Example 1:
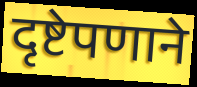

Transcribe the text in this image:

दृष्टेपणाने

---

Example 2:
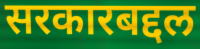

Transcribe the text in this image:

सरकारबद्दल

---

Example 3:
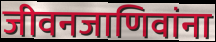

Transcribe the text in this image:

जीवनजाणिवांना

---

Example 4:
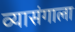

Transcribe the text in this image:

व्यासंगाला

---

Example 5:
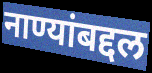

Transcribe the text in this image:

नाण्यांबद्दल